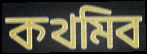
কথমিব